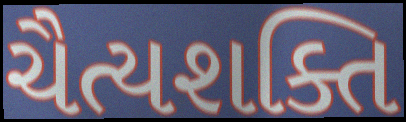
ચૈત્યશક્તિ